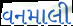
વનમાલી